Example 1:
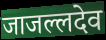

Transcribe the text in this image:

जाजल्लदेव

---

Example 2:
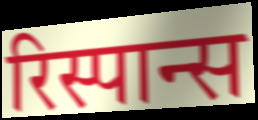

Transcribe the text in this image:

रिस्पान्स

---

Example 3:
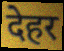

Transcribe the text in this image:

देहर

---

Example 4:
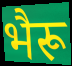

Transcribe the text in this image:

भैरू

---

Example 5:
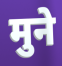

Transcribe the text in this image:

मुने